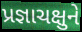
પ્રજ્ઞાચક્ષુને